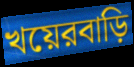
খয়েরবাড়ি